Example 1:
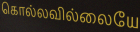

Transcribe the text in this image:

கொல்லவில்லையே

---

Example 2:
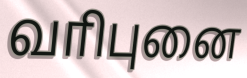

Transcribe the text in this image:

வரிபுனை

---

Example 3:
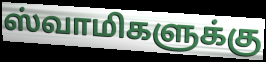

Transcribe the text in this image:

ஸ்வாமிகளுக்கு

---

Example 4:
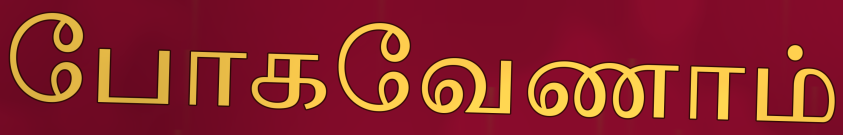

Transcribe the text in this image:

போகவேணாம்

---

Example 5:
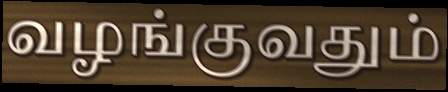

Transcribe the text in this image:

வழங்குவதும்